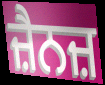
ਜ਼ੈਨਜ਼